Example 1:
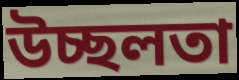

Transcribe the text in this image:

উচ্ছলতা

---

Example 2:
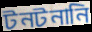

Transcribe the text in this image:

টনটনানি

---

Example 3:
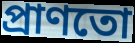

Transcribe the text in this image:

প্রাণতো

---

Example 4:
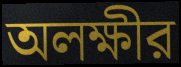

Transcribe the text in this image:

অলক্ষীর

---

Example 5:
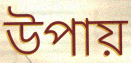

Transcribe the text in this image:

উপায়